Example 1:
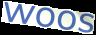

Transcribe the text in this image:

woos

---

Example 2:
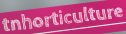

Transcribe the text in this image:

tnhorticulture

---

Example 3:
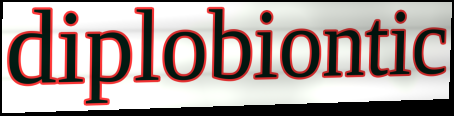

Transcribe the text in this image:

diplobiontic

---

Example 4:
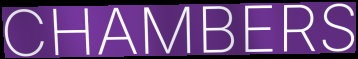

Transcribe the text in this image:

CHAMBERS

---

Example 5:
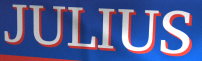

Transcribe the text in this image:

JULIUS